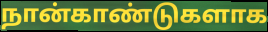
நான்காண்டுகளாக